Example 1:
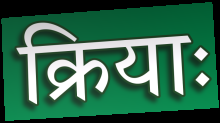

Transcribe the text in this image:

क्रियाः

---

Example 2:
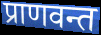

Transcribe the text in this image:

प्राणवन्त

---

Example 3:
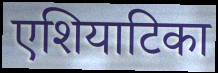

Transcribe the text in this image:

एशियाटिका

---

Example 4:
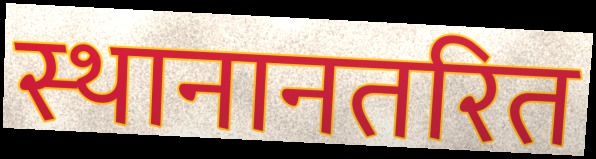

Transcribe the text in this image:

स्थानानतरित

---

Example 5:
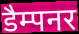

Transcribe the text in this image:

डैम्पनर